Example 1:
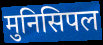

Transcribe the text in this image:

मुनिसिपल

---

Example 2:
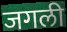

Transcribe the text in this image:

जगली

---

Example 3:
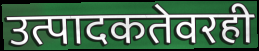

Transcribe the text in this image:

उत्पादकतेवरही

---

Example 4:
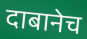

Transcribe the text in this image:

दाबानेच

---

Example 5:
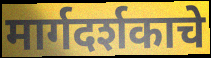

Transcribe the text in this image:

मार्गदर्शकाचे